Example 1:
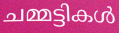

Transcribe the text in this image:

ചമ്മട്ടികൾ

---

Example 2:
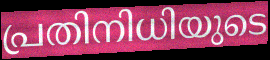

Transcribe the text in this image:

പ്രതിനിധിയുടെ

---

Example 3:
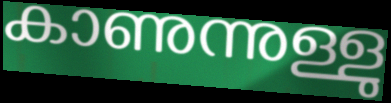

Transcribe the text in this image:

കാണുന്നുള്ളു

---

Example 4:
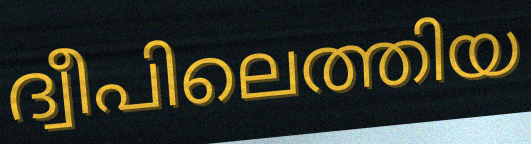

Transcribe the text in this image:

ദ്വീപിലെത്തിയ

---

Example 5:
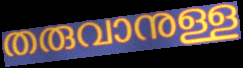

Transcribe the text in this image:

തരുവാനുള്ള